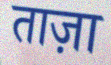
ताज़ा